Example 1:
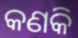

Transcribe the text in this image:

କଣକି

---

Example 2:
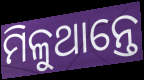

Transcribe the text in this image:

ମିଳୁଥାନ୍ତେ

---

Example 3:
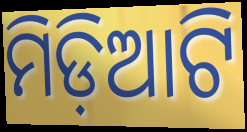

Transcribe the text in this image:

ମିଡ଼ିଆଟି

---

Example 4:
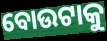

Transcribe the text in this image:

ବୋଉଟାକୁ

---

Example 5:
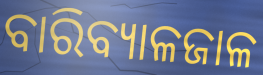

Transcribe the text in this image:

ବାରିବ୍ୟାଳଜାଳ